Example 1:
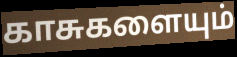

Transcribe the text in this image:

காசுகளையும்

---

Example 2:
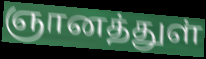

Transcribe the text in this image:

ஞானத்துள்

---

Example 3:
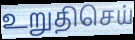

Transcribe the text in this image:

உறுதிசெய்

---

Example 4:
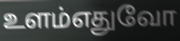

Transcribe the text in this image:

உளம்எதுவோ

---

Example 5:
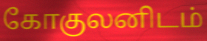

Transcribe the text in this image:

கோகுலனிடம்